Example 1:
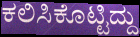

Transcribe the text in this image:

ಕಲಿಸಿಕೊಟ್ಟಿದ್ದು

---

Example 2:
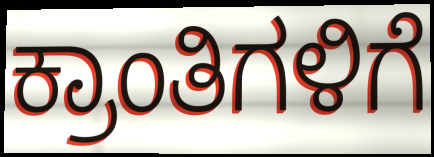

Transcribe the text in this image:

ಕ್ರಾಂತಿಗಳಿಗೆ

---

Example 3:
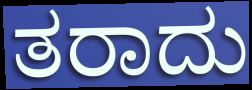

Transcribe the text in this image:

ತರಾದು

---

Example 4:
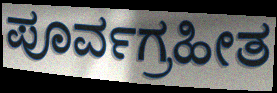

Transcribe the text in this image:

ಪೂರ್ವಗ್ರಹೀತ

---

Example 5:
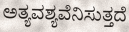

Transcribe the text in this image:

ಅತ್ಯವಶ್ಯವೆನಿಸುತ್ತದೆ